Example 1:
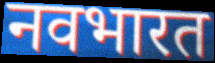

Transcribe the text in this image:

नवभारत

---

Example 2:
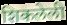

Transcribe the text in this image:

शिकलेली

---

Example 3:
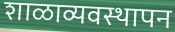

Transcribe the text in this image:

शाळाव्यवस्थापन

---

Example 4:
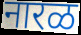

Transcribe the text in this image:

नारळ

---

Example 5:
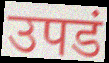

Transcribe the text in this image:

उपडं